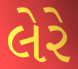
લેરે